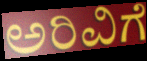
ಅರಿವಿಗೆ